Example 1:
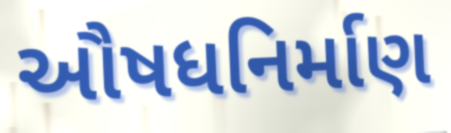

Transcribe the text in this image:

ઔષધનિર્માણ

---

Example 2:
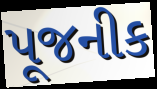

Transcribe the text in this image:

પૂજનીક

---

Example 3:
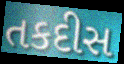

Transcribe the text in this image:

તકદીસ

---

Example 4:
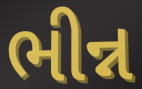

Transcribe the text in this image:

ભીન્ન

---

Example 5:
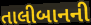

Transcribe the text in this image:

તાલીબાનની